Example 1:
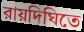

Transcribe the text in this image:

রায়দিঘিতে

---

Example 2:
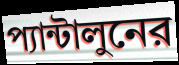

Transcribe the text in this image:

প্যান্টালুনের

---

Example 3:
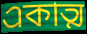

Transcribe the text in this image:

একাত্ম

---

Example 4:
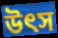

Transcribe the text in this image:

উৎস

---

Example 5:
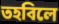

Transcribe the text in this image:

তহবিলে